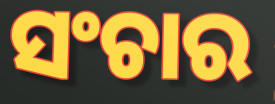
ସଂଚାର